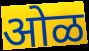
ओळ